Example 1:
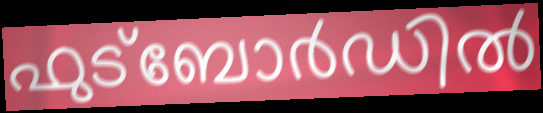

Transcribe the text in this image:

ഫുട്ബോർഡിൽ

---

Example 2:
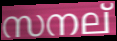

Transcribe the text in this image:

സനല്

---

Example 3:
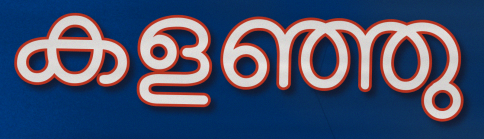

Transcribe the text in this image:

കളഞ്ഞു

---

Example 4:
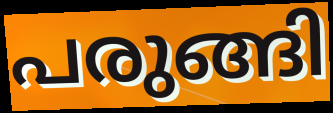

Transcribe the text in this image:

പരുങ്ങി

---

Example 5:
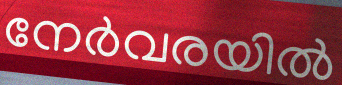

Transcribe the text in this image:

നേർവരയിൽ